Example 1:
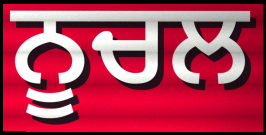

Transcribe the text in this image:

ਨੂਚਲ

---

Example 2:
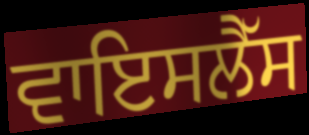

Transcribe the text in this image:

ਵਾਇਸਲੈੱਸ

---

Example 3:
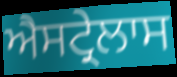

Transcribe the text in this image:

ਐਸਟ੍ਰੇਲਾਸ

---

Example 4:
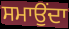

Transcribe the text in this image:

ਸਮਾਉਂਦਾ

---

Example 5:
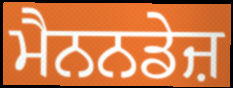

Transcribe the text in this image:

ਮੈਨਨਡੇਜ਼